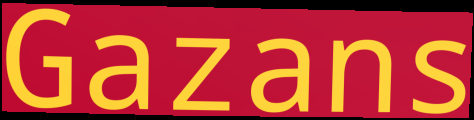
Gazans